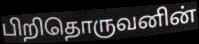
பிறிதொருவனின்